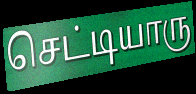
செட்டியாரு